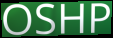
OSHP